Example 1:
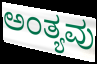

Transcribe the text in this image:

ಅಂತ್ಯವು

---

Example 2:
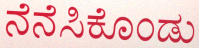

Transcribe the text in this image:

ನೆನೆಸಿಕೊಂಡು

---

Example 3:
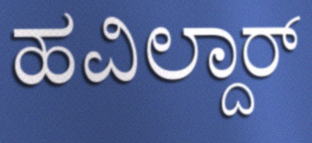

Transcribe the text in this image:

ಹವಿಲ್ದಾರ್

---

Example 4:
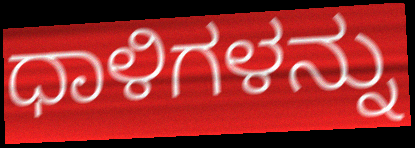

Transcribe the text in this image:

ಧಾಳಿಗಳನ್ನು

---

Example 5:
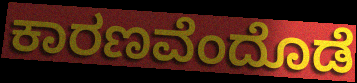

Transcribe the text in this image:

ಕಾರಣವೆಂದೊಡೆ